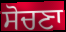
ਸੋਚਣਾ